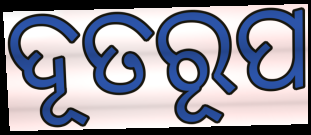
ଦୂତରୂପ